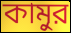
কামুর